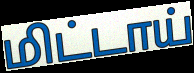
மிட்டாய்